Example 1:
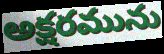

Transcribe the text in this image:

అక్షరమును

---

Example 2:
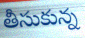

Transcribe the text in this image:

తీసుకున్న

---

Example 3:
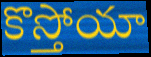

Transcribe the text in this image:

కొస్తోయా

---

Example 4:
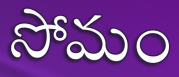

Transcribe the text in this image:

సోమం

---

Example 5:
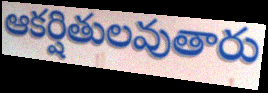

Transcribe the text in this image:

ఆకర్షితులవుతారు